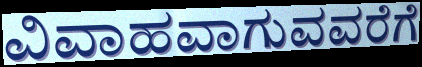
ವಿವಾಹವಾಗುವವರೆಗೆ